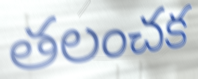
తలంచక